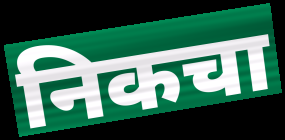
निकचा